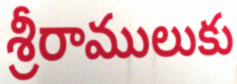
శ్రీరాములుకు